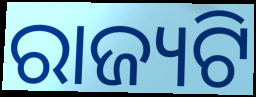
ରାଜ୍ୟଟି